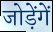
जोड़ेंगें